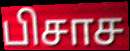
பிசாச